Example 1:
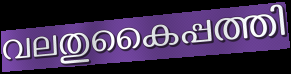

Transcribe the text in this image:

വലതുകൈപ്പത്തി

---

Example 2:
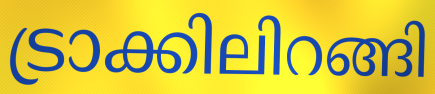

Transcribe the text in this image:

ട്രാക്കിലിറങ്ങി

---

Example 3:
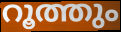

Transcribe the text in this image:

റൂത്തും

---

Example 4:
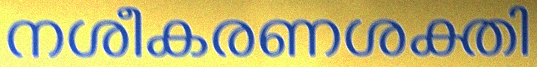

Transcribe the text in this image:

നശീകരണശക്തി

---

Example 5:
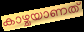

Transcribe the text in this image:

കാഴ്ചയാണത്